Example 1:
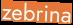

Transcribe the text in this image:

zebrina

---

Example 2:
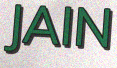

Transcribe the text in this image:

JAIN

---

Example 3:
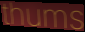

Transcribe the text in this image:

thums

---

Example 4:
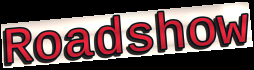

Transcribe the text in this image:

Roadshow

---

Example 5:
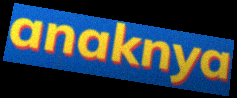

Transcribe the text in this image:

anaknya